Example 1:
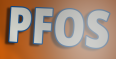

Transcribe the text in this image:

PFOS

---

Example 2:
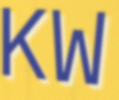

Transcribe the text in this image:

KW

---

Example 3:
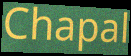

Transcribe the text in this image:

Chapal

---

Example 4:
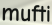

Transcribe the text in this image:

mufti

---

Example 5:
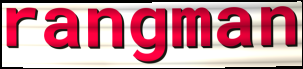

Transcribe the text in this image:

rangman